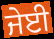
ਜੇਈ